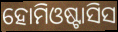
ହୋମିଓଷ୍ଟାସିସ